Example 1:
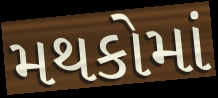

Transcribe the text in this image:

મથકોમાં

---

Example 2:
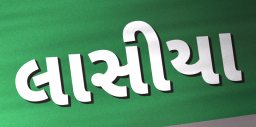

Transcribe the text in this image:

લાસીયા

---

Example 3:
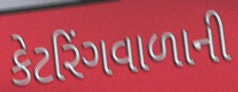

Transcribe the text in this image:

કેટરિંગવાળાની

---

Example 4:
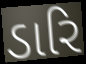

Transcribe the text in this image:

ડારિ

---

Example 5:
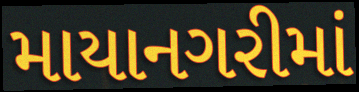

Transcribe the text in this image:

માયાનગરીમાં